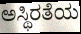
ಅಸ್ಥಿರತೆಯ